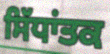
ਸਿੱਧਾਂਤਕ